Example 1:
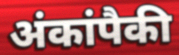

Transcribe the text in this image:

अंकांपैकी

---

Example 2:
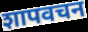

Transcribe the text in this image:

शापवचन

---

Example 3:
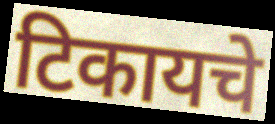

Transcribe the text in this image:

टिकायचे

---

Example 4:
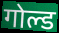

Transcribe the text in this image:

गोल्ड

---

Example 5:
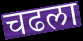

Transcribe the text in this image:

चढला